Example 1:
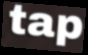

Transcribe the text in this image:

tap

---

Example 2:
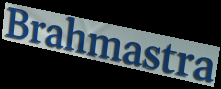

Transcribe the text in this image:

Brahmastra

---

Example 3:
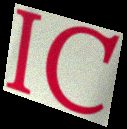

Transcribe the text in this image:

IC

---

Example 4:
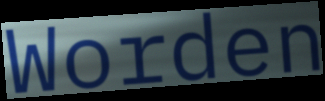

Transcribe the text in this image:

Worden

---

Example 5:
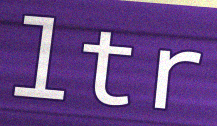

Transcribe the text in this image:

ltr